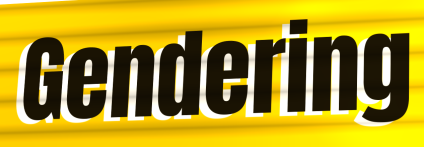
Gendering